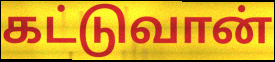
கட்டுவான்